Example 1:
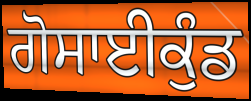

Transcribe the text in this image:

ਗੋਸਾਈਕੁੰਡ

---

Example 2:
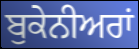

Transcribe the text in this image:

ਬੁਕੇਨੀਅਰਾਂ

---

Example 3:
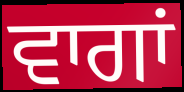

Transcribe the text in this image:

ਵਾਗਾਂ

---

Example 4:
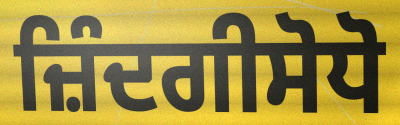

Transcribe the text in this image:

ਜ਼ਿੰਦਗੀਸੋਧੋ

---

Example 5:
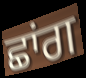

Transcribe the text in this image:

ਛਾਂਗ